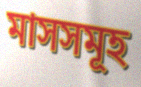
মাসসমূহ